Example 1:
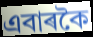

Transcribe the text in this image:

এবাৰকৈ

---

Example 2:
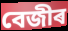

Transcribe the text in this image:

বেজীৰ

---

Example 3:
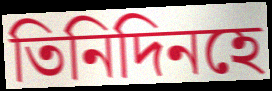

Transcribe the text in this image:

তিনিদিনহে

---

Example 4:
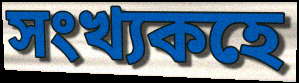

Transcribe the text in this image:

সংখ্যকহে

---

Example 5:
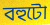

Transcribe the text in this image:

বহুটো